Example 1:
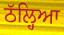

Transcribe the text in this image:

ਠੱਲ੍ਹਿਆ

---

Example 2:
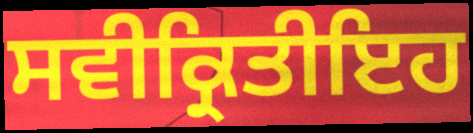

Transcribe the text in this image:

ਸਵੀਕ੍ਰਿਤੀਇਹ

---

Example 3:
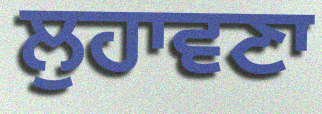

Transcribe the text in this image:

ਲੁਹਾਵਣਾ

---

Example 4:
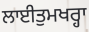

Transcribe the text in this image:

ਲਾਈਤੁਮਖਰ੍ਹਾ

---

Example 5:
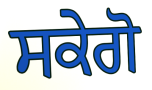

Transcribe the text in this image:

ਸਕੇਗੋ